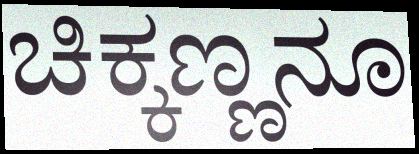
ಚಿಕ್ಕಣ್ಣನೂ